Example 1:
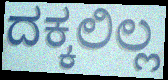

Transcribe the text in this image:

ದಕ್ಕಲಿಲ್ಲ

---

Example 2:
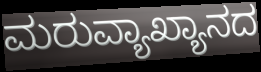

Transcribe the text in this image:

ಮರುವ್ಯಾಖ್ಯಾನದ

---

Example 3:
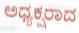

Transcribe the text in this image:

ಅಧ್ಯಕ್ಷರಾದ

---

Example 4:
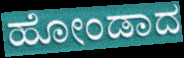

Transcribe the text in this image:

ಹೋಂಡಾದ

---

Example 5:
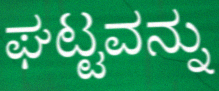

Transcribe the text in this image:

ಘಟ್ಟವನ್ನು